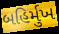
બહિર્મુખ